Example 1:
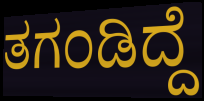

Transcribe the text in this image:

ತಗಂಡಿದ್ದೆ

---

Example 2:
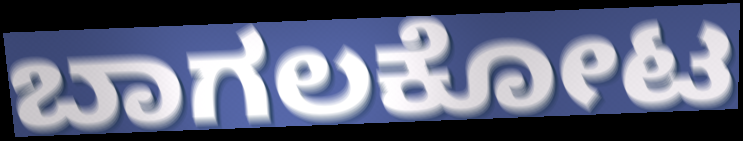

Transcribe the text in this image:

ಬಾಗಲಕೋಟ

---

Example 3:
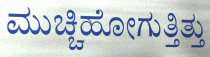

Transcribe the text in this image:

ಮುಚ್ಚಿಹೋಗುತ್ತಿತ್ತು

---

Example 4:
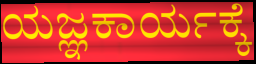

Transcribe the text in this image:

ಯಜ್ಞಕಾರ್ಯಕ್ಕೆ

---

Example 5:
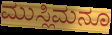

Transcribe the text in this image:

ಮುಸ್ಲಿಮನೂ